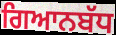
ਗਿਆਨਬੱਧ